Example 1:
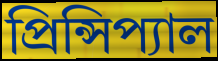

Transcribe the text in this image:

প্রিন্সিপ্যাল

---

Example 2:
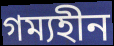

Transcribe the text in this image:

গম্যহীন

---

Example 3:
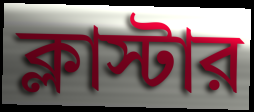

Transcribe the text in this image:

ক্লাস্টার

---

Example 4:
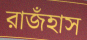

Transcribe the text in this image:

রাজঁহাস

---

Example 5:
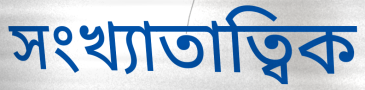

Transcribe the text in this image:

সংখ্যাতাত্বিক